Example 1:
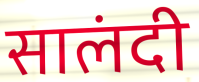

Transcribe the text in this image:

सालंदी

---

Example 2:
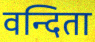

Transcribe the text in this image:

वन्दिता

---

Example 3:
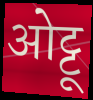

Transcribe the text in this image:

ओट्टू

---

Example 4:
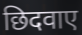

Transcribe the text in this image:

छिदवाए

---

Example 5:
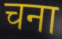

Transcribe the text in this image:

चना